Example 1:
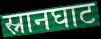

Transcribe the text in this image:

स्नानघाट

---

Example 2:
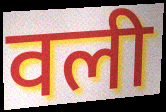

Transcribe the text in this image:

वली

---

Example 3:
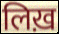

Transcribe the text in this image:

लिख़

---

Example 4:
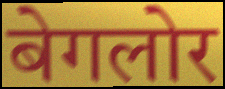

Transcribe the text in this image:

बेगलोर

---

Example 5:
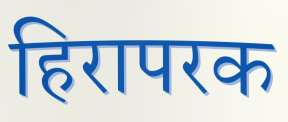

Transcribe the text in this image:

हिरापरक